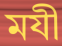
মযী